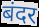
बंदर